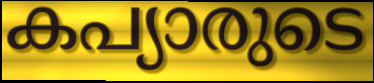
കപ്യാരുടെ